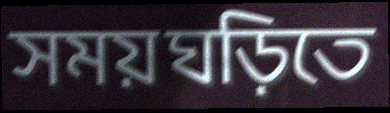
সময়ঘড়িতে